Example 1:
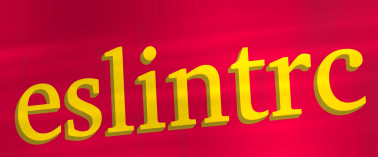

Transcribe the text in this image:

eslintrc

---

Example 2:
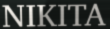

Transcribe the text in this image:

NIKITA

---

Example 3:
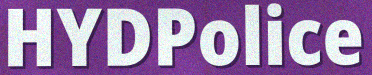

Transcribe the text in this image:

HYDPolice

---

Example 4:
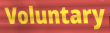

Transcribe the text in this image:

Voluntary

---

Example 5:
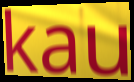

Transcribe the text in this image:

kau